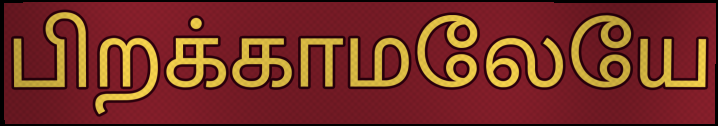
பிறக்காமலேயே